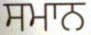
ਸਮਾਨ